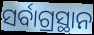
ସର୍ବାଗ୍ରସ୍ଥାନ